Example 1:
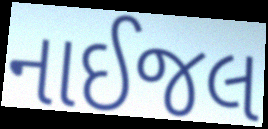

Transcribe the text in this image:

નાઈજલ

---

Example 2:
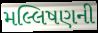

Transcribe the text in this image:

મલ્લિષણની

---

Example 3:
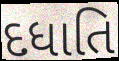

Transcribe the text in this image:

દધાતિ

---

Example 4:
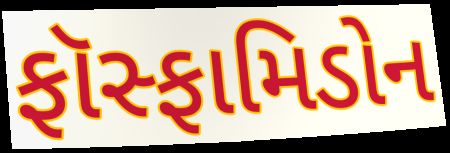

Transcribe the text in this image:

ફૉસ્ફામિડોન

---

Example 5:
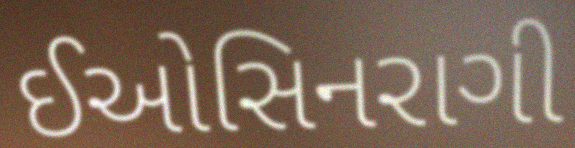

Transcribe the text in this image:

ઈઓસિનરાગી